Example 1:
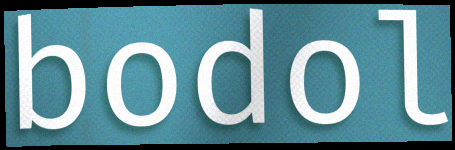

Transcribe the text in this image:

bodol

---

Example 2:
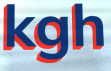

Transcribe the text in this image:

kgh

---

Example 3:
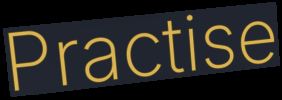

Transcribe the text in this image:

Practise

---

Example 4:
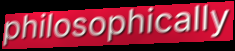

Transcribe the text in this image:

philosophically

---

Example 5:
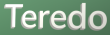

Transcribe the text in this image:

Teredo